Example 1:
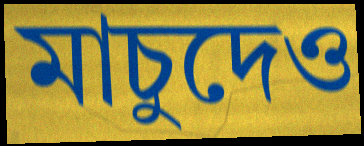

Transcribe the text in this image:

মাচুদেও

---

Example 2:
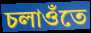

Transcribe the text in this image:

চলাওঁতে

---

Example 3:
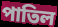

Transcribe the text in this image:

পাতিল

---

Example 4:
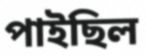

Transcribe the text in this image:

পাইছিল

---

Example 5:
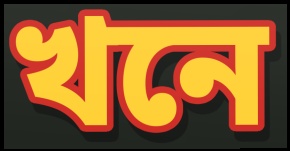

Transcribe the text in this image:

খনে